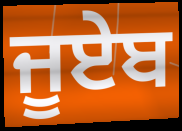
ਜੂਏਬ